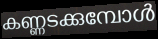
കണ്ണടക്കുമ്പോൾ